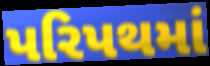
પરિપથમાં